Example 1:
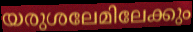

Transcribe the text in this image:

യരുശലേമിലേക്കും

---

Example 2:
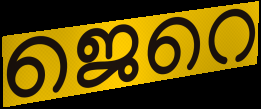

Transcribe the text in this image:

ജെറെ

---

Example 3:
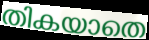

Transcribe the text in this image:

തികയാതെ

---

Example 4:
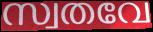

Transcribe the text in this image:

സ്വതവേ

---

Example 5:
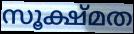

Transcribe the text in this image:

സൂക്ഷ്മത